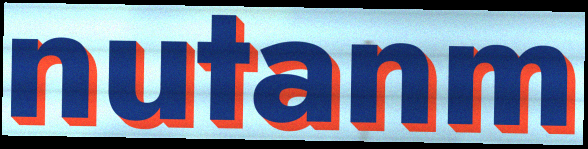
nutanm